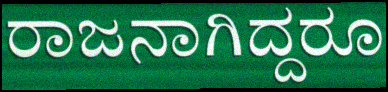
ರಾಜನಾಗಿದ್ದರೂ